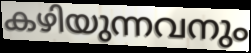
കഴിയുന്നവനും